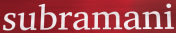
subramani